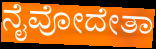
ನೈವೋದೇತಾ